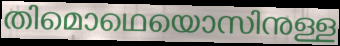
തിമൊഥെയൊസിനുള്ള